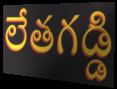
లేతగడ్డి